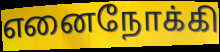
எனைநோக்கி